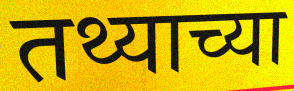
तथ्याच्या